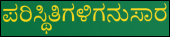
ಪರಿಸ್ಥಿತಿಗಳಿಗನುಸಾರ